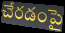
చేరడంపై